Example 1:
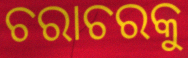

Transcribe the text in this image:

ଚରାଚରକୁ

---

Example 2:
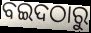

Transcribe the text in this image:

ବଇଦଠାରୁ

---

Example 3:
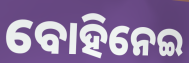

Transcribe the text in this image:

ବୋହିନେଇ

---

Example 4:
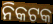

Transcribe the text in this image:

ନିକଟକ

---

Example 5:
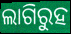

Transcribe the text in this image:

ଲାଗିରୁହ